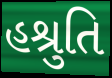
હશ્રુતિ